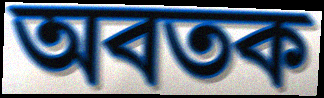
অবতক